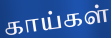
காய்கள்